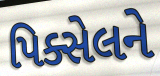
પિક્સેલને